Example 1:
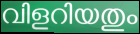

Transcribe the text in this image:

വിളറിയതും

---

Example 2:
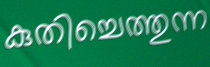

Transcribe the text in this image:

കുതിച്ചെത്തുന്ന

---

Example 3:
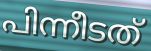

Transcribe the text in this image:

പിന്നീടത്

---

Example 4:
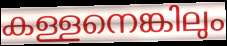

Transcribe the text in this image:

കള്ളനെങ്കിലും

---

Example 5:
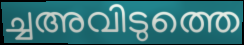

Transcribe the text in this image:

ച്ചഅവിടുത്തെ